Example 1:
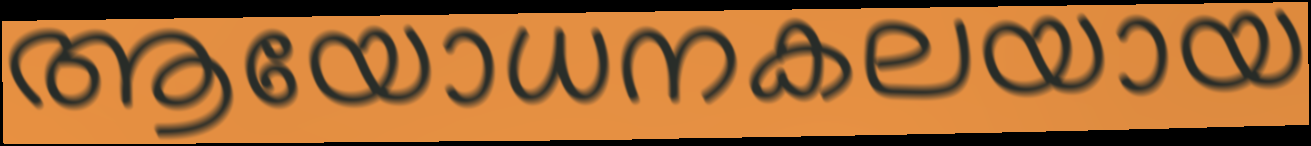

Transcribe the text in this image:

ആയോധനകലയായ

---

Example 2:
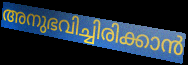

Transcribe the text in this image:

അനുഭവിച്ചിരിക്കാൻ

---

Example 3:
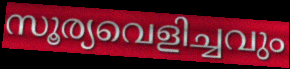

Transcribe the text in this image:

സൂര്യവെളിച്ചവും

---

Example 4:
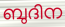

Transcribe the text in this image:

ബുദിന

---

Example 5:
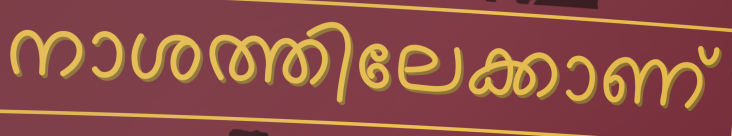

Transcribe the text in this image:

നാശത്തിലേക്കാണ്